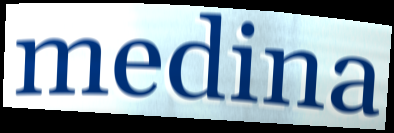
medina